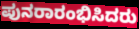
ಪುನರಾರಂಭಿಸಿದರು